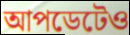
আপডেটেও